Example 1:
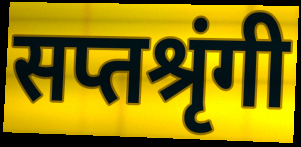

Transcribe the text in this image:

सप्तश्रृंगी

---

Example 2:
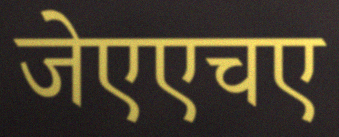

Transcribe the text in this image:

जेएएचए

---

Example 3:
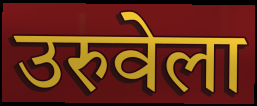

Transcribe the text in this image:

उरुवेला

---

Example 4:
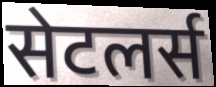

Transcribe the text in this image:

सेटलर्स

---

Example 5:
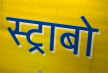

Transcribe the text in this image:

स्ट्राबो